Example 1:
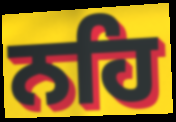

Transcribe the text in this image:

ਨਹਿ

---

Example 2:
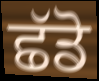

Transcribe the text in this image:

ਛੱਡੋ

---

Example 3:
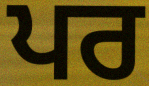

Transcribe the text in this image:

ਪਰ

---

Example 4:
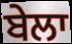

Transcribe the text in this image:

ਬੇਲਾ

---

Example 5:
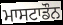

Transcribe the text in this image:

ਮਾਸਟਾਡੌਨ